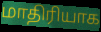
மாதிரியாக